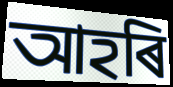
আহৰি